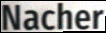
Nacher